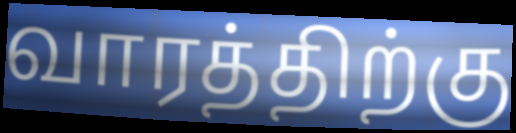
வாரத்திற்கு